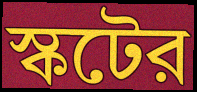
স্কটের